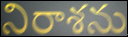
నిరాశను